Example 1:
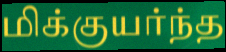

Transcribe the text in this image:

மிக்குயர்ந்த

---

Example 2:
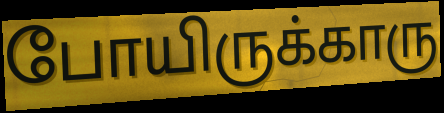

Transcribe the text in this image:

போயிருக்காரு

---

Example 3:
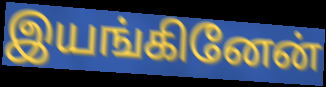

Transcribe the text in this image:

இயங்கினேன்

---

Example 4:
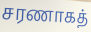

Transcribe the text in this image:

சரணாகத்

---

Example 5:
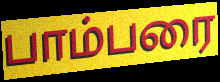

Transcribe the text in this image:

பாம்பரை